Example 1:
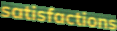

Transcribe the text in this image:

satisfactions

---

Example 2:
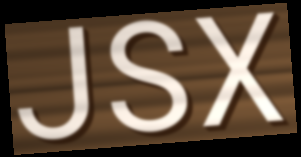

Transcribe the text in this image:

JSX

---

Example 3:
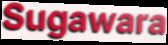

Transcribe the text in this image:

Sugawara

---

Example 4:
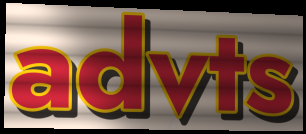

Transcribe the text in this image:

advts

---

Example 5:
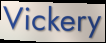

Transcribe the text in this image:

Vickery